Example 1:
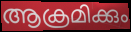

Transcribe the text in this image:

ആക്രമിക്കും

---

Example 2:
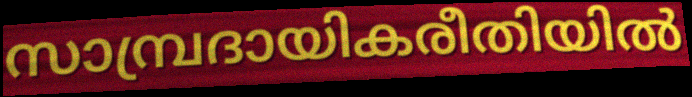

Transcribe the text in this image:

സാമ്പ്രദായികരീതിയിൽ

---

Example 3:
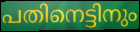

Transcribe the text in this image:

പതിനെട്ടിനും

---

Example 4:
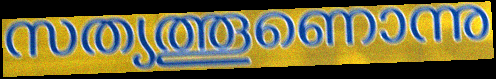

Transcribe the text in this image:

സത്യത്തൂണൊന്നു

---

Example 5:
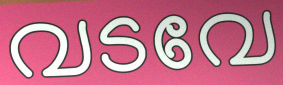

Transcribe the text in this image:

വടവേ